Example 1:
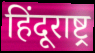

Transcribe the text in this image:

हिंदूराष्ट्र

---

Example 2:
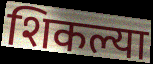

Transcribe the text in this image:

शिकल्या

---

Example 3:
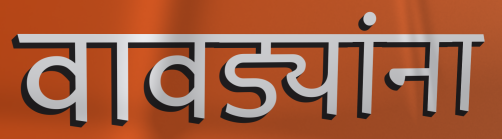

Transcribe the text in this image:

वावड्यांना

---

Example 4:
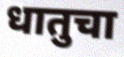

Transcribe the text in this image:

धातुचा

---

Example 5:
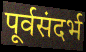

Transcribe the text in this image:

पूर्वसंदर्भ